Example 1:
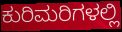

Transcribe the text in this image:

ಕುರಿಮರಿಗಳಲ್ಲಿ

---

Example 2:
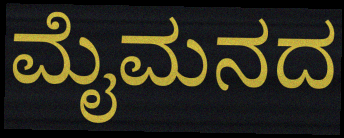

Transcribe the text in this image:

ಮೈಮನದ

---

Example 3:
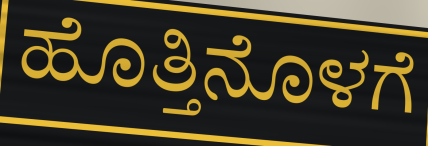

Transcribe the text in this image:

ಹೊತ್ತಿನೊಳಗೆ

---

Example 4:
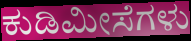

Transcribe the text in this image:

ಕುಡಿಮೀಸೆಗಳು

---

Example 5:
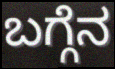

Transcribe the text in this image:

ಬಗ್ಗೆನ